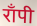
राँपी